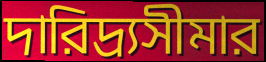
দারিদ্র্যসীমার